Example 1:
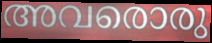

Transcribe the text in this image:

അവരൊരു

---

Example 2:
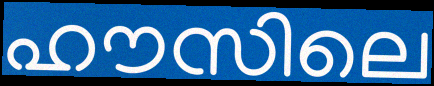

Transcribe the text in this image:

ഹൗസിലെ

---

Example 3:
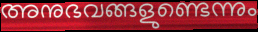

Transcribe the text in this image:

അനുഭവങ്ങളുണ്ടെന്നും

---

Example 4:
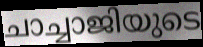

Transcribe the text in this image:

ചാച്ചാജിയുടെ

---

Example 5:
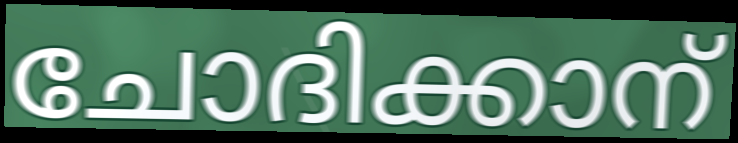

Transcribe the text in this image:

ചോദിക്കാന്